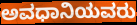
ಅವಧಾನಿಯವರು